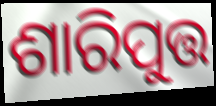
ଶାରିପୁତ୍ତ